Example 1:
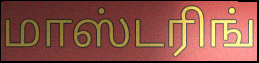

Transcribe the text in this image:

மாஸ்டரிங்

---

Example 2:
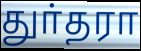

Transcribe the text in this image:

துர்தரா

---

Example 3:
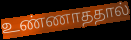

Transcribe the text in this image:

உண்ணாததால்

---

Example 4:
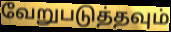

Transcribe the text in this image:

வேறுபடுத்தவும்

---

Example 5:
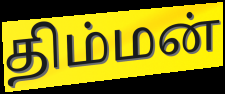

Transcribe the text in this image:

திம்மன்